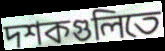
দশকগুলিতে